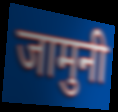
जामुनी